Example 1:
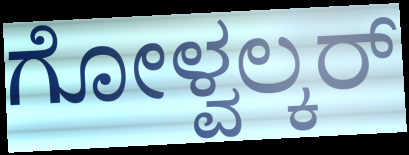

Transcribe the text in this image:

ಗೋಳ್ವಲ್ಕರ್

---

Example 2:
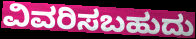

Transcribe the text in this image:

ವಿವರಿಸಬಹುದು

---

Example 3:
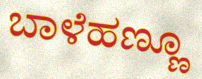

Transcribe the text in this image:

ಬಾಳೆಹಣ್ಣೂ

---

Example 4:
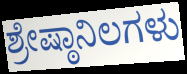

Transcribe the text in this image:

ಶ್ರೇಷ್ಠಾನಿಲಗಳು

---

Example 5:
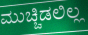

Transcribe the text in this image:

ಮುಚ್ಚಿಡಲಿಲ್ಲ